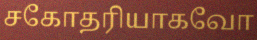
சகோதரியாகவோ